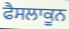
ਫੈਸਲਾਕੂਨ